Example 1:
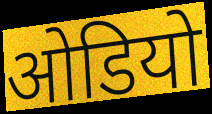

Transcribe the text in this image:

ओडियो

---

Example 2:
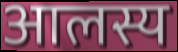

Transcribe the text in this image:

आलस्य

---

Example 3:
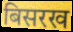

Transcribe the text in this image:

बिसरख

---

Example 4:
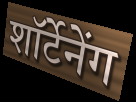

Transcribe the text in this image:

शॉर्टेनेंग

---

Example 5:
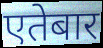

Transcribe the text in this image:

एतेबार